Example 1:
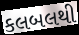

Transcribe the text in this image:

કલબલથી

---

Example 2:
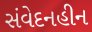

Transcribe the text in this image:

સંવેદનહીન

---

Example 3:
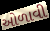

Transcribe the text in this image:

ઓળાવી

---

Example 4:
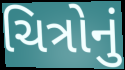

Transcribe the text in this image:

ચિત્રોનું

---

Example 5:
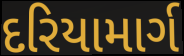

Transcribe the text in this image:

દરિયામાર્ગ